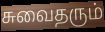
சுவைதரும்